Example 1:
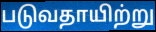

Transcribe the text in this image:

படுவதாயிற்று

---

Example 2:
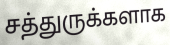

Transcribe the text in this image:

சத்துருக்களாக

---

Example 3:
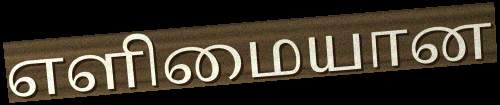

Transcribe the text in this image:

எளிமையான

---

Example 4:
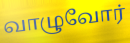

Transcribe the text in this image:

வாழுவோர்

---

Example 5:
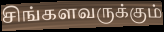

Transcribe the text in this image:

சிங்களவருக்கும்